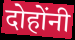
दोहोंनी